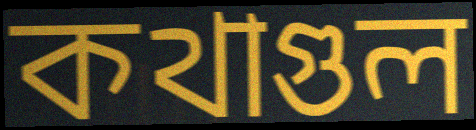
কথাগুল